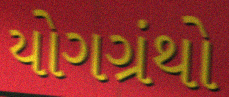
યોગગ્રંથો